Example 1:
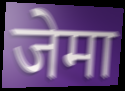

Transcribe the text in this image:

जेमा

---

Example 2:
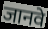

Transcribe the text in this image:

जानवे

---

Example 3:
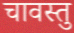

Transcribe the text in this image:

चावस्तु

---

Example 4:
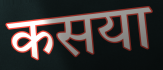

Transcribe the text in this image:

कसया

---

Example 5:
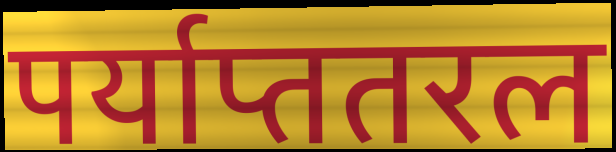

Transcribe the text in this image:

पर्याप्ततरल